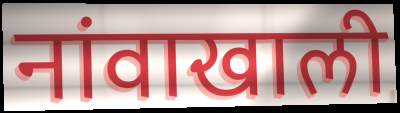
नांवाखाली